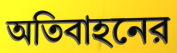
অতিবাহনের